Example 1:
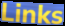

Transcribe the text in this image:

Links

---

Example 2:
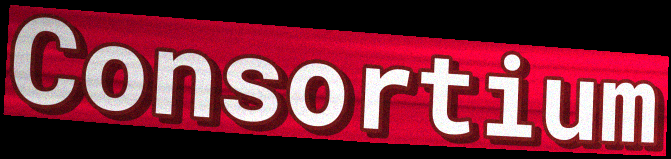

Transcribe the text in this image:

Consortium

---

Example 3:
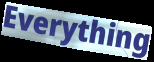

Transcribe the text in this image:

Everything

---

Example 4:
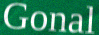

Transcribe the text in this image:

Gonal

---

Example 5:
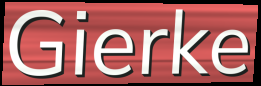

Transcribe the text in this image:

Gierke